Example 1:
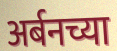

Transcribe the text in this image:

अर्बनच्या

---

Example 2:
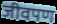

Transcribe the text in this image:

जीवपण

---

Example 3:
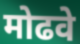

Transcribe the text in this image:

मोढवे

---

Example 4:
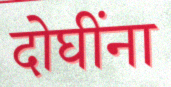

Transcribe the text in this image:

दोघींना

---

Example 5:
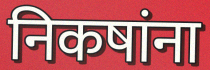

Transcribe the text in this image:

निकषांना